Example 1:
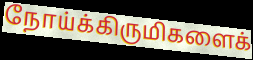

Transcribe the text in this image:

நோய்க்கிருமிகளைக்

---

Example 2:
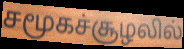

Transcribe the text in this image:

சமூகச்சூழலில்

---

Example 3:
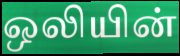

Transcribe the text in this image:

ஒலியின்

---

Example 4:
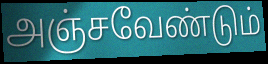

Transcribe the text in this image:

அஞ்சவேண்டும்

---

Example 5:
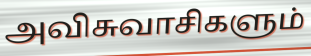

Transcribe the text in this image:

அவிசுவாசிகளும்